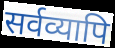
सर्वव्यापि